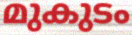
മുകുടം